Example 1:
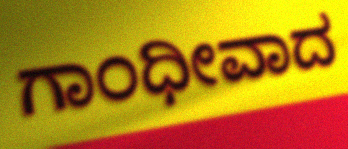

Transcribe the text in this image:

ಗಾಂಧೀವಾದ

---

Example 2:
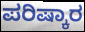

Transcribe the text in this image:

ಪರಿಷ್ಕಾರ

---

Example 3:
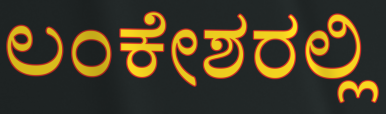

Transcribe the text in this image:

ಲಂಕೇಶರಲ್ಲಿ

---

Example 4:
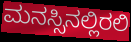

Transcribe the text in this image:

ಮನಸ್ಸಿನಲ್ಲಿರಲಿ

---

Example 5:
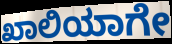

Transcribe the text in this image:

ಖಾಲಿಯಾಗೇ